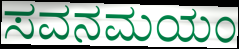
ಸವನಮಯಂ